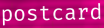
postcard